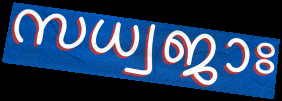
സധ്വജാഃ